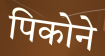
पिकोने